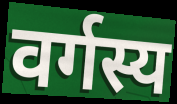
वर्गस्य